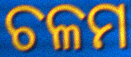
ଚଳମ